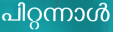
പിറ്റന്നാൾ